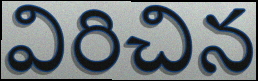
విరిచిన